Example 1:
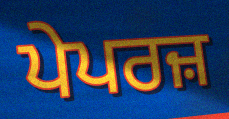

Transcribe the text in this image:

ਪੇਪਰਜ਼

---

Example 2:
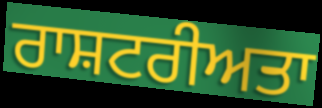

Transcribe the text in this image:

ਰਾਸ਼ਟਰੀਅਤਾ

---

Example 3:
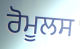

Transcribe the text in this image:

ਰੋਮੂਲਸ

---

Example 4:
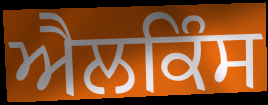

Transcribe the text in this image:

ਐਲਕਿੰਸ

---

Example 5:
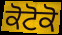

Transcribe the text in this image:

ਕੋਟੋਕੋ